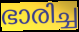
ഭാരിച്ച